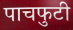
पाचफुटी